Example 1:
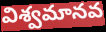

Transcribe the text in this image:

విశ్వమానవ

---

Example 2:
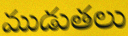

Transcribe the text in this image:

ముడుతలు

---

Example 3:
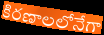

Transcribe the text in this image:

కిరణాలలోనేగా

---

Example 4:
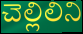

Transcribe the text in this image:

చెల్లిలిని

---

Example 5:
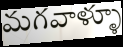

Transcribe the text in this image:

మగవాళ్ళూ